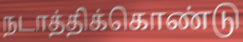
நடாத்திக்கொண்டு